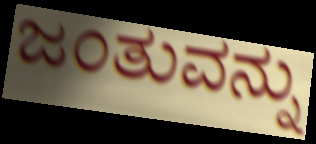
ಜಂತುವನ್ನು